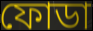
ফোডা